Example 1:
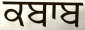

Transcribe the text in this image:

ਕਬਾਬ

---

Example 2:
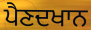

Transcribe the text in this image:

ਪੈਣਦਖਾਨ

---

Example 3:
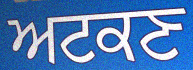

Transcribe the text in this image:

ਅਟਕਣ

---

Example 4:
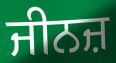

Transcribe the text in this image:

ਜੀਨਜ਼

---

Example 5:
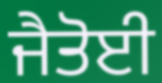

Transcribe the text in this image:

ਜੈਤੋਈ